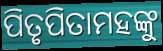
ପିତୃପିତାମହଙ୍କୁ